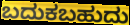
ಬದುಕಬಹುದು